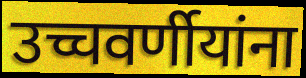
उच्चवर्णीयांना